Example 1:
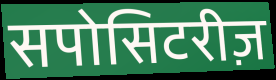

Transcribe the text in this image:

सपोसिटरीज़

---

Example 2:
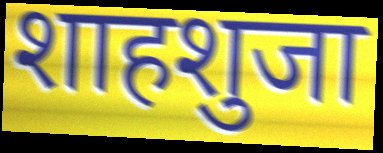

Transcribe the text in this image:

शाहशुजा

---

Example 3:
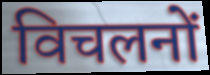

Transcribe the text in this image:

विचलनों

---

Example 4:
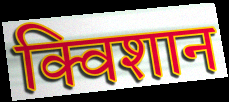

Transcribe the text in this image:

क्विशान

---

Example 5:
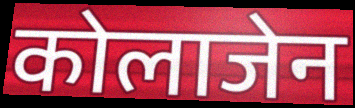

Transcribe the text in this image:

कोलाजेन